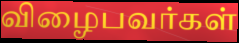
விழைபவர்கள்